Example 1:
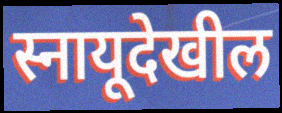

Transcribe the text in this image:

स्नायूदेखील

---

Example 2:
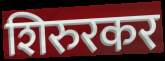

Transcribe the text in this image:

शिरुरकर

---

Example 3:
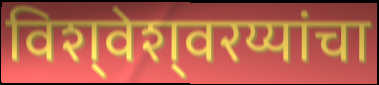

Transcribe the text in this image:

विश्वेश्वरय्यांचा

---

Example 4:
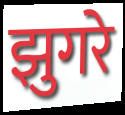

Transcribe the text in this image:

झुगरे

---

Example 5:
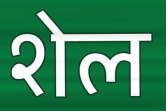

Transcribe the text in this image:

शेल